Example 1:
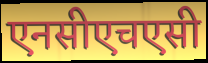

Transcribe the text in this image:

एनसीएचएसी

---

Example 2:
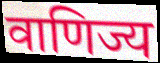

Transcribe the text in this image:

वाणिज्य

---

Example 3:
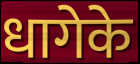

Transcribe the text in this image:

धागेके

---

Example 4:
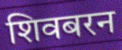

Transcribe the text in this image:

शिवबरन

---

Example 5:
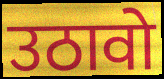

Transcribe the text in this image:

उठावो